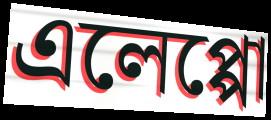
এলেপ্পো